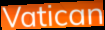
Vatican